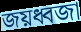
জয়ধ্বজা